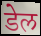
डेल